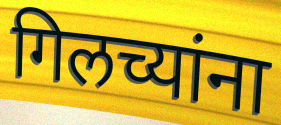
गिलच्यांना